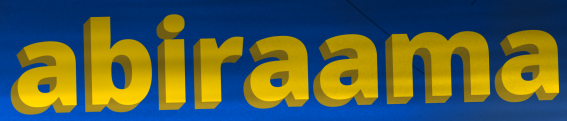
abiraama